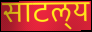
साटल्य